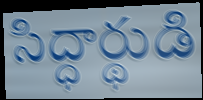
సిద్ధార్థుడి